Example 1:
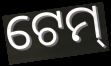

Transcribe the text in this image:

ଟେମ୍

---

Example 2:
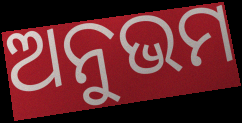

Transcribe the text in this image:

ଅନୁଭମ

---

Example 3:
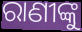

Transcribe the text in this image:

ରାଣୀଙ୍କୁ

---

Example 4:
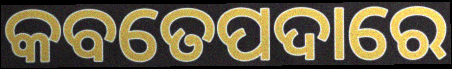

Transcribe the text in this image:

କବତେପଦାରେ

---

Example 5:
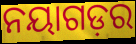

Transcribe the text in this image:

ନୟାଗଡ଼ର